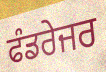
ਫੰਡਰੇਜਰ